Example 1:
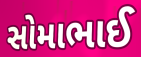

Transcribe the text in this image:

સોમાભાઈ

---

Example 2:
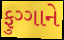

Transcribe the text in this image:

ફુગ્ગાને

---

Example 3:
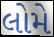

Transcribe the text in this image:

લોમે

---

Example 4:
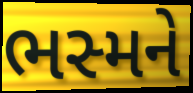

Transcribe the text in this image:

ભસ્મને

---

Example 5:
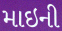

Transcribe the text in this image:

માઇની